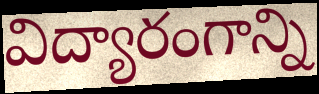
విద్యారంగాన్ని